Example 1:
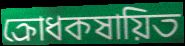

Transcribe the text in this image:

ক্রোধকষায়িত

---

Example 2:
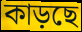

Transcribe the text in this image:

কাড়ছে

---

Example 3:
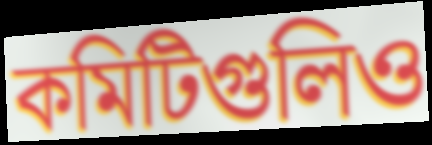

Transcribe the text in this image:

কমিটিগুলিও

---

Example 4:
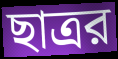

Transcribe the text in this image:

ছাত্রর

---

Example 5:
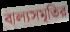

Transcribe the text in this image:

বাল্যসমৃতির